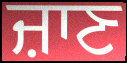
ਜ਼ਾਣ